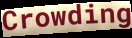
Crowding